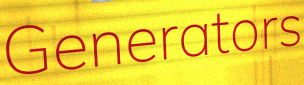
Generators